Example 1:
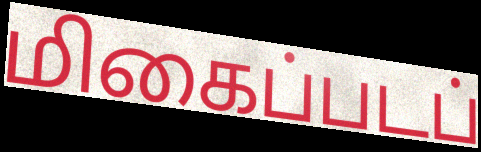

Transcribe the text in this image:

மிகைப்படப்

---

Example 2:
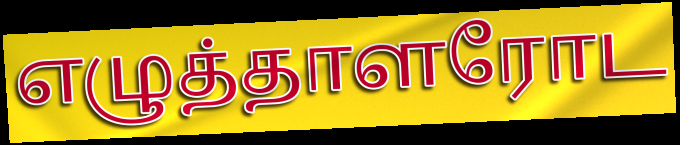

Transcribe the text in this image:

எழுத்தாளரோட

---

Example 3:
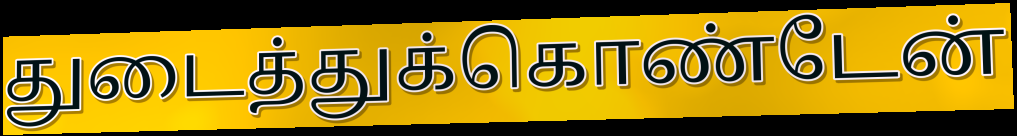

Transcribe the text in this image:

துடைத்துக்கொண்டேன்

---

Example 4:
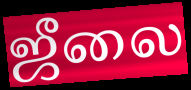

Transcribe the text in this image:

ஜீலை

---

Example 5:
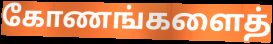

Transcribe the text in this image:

கோணங்களைத்